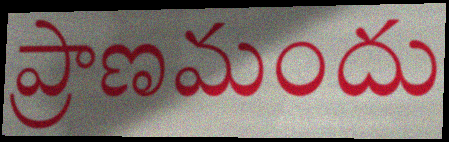
ప్రాణమందు